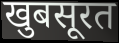
खुबसूरत